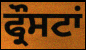
ਫ੍ਰੌਸਟਾਂ